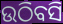
ଉଠିବସି